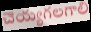
చెయ్యగలగాలి